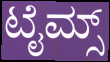
ಟೈಮ್ಸ್